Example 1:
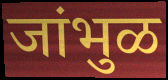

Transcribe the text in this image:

जांभुळ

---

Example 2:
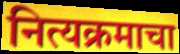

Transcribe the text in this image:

नित्यक्रमाचा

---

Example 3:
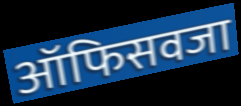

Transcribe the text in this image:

ऑफिसवजा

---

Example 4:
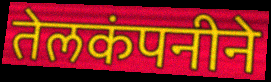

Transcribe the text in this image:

तेलकंपनीने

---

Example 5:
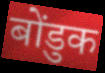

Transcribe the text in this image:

बोंडुक